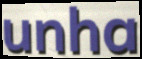
unha